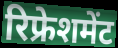
रिफ्रेशमेंट